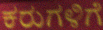
ಕರುಗಳಿಗೆ